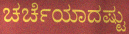
ಚರ್ಚೆಯಾದಷ್ಟು